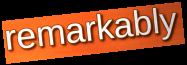
remarkably